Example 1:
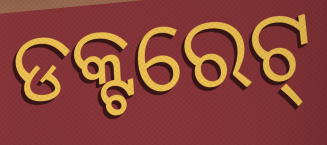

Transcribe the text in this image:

ଡକ୍ଟରେଟ୍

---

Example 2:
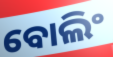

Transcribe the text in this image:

ବୋଲିଂ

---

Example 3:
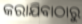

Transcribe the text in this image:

କରାଯିବାଠାରୁ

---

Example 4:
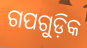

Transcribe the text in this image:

ଗପଗୁଡ଼ିକ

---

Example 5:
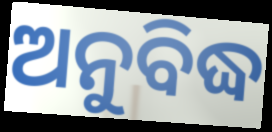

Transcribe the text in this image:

ଅନୁବିଦ୍ଧ